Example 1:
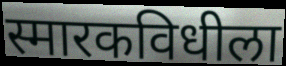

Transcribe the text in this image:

स्मारकविधीला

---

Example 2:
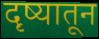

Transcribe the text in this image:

दृष्यातून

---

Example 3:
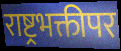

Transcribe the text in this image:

राष्ट्रभक्तीपर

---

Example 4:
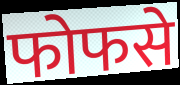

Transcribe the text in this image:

फोफसे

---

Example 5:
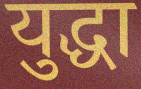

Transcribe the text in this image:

युद्धा